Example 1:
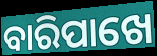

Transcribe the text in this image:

ବାରିପାଖେ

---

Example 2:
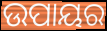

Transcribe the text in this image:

ଉପାୟର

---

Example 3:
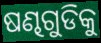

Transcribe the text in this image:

ଷଣ୍ଢଗୁଡିକୁ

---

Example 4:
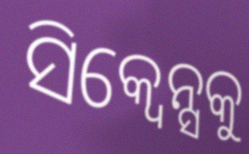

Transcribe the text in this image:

ସିକ୍ୱେନ୍ସକୁ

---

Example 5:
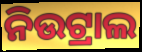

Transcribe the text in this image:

ନିଉଟ୍ରାଲ